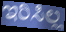
ಇರಿಸಿಲ್ಲ